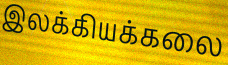
இலக்கியக்கலை